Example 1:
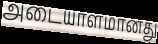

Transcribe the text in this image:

அடையாளமானது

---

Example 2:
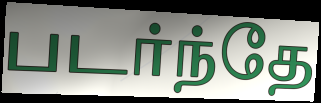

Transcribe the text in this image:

படர்ந்தே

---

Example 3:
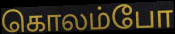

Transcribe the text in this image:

கொலம்போ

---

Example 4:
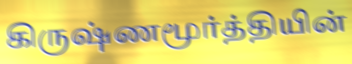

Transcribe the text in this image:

கிருஷ்ணமூர்த்தியின்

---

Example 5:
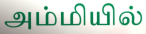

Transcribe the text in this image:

அம்மியில்